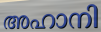
അഹാനി